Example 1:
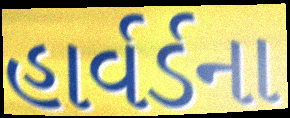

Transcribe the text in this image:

હાર્વર્ડના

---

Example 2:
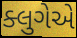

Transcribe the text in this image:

ક્લુગેએ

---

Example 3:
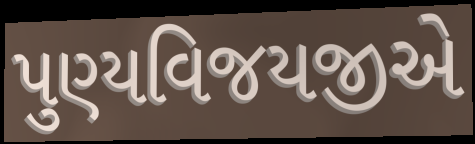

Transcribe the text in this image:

પુણ્યવિજયજીએ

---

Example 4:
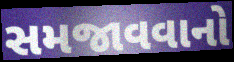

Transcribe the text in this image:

સમજાવવાનો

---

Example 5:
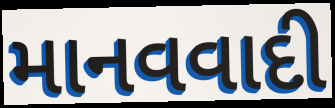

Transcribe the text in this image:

માનવવાદી